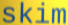
skim